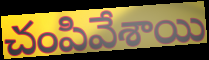
చంపివేశాయి